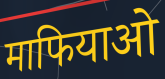
माफियाओ